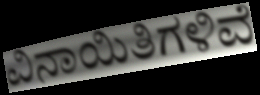
ವಿನಾಯಿತಿಗಳಿವೆ